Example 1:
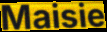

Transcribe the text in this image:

Maisie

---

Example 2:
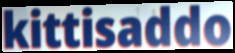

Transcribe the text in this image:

kittisaddo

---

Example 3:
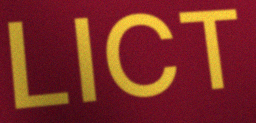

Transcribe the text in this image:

LICT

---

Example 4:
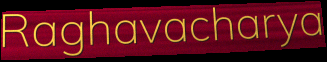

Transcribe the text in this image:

Raghavacharya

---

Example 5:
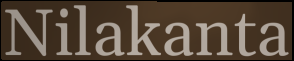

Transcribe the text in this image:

Nilakanta